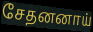
சேதனனாய்